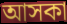
আসকা